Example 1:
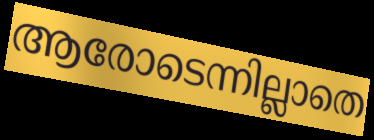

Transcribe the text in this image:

ആരോടെന്നില്ലാതെ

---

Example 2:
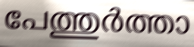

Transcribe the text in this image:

പേത്തുർത്താ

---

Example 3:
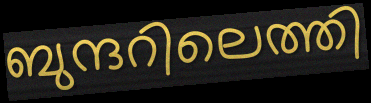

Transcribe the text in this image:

ബുന്ദറിലെത്തി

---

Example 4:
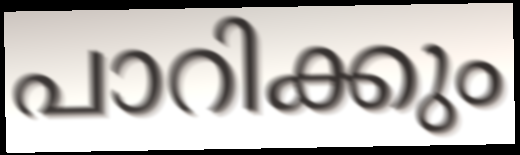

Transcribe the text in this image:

പാറിക്കും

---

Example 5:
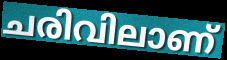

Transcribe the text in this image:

ചരിവിലാണ്